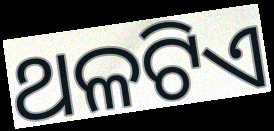
ଥଳଟିଏ